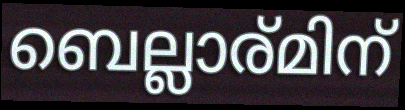
ബെല്ലാര്മിന്